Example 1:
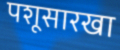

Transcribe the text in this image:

पशूसारखा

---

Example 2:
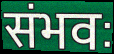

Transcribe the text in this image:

संभवः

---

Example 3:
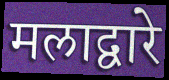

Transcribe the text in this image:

मलाद्वारे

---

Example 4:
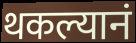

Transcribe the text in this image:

थकल्यानं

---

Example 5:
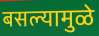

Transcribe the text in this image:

बसल्यामुळे